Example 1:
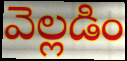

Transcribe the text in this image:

వెల్లడిం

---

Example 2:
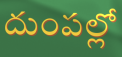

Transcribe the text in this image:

దుంపల్లో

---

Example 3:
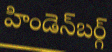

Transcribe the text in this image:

హిండెన్‌బర్గ్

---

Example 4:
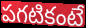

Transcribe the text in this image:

పగటికంటే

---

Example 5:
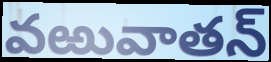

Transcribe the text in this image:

వఱువాతన్